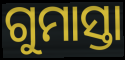
ଗୁମାସ୍ତା